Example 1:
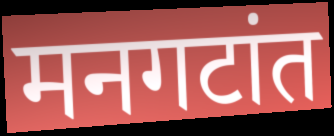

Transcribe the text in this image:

मनगटांत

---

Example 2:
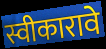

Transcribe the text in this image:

स्वीकारावे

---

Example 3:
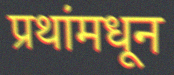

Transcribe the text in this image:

प्रथांमधून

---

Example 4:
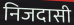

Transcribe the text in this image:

निजदासी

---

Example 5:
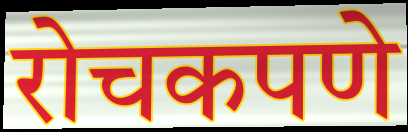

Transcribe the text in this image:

रोचकपणे